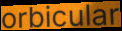
orbicular